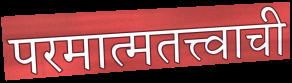
परमात्मतत्त्वाची